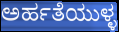
ಅರ್ಹತೆಯುಳ್ಳ